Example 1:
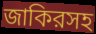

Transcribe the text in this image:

জাকিরসহ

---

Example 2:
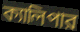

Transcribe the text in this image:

ক্যালিপার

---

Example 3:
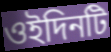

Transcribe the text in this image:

ওইদিনটি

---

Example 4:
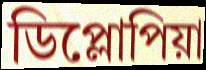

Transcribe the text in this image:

ডিপ্লোপিয়া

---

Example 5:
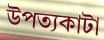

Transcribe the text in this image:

উপত্যকাটা